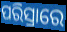
ପରିସ୍ରାରେ